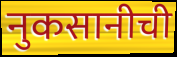
नुकसानीची